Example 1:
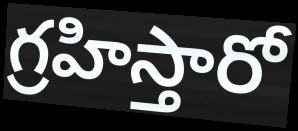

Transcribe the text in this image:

గ్రహిస్తారో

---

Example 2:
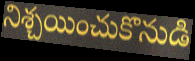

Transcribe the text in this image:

నిశ్చయించుకొనుడి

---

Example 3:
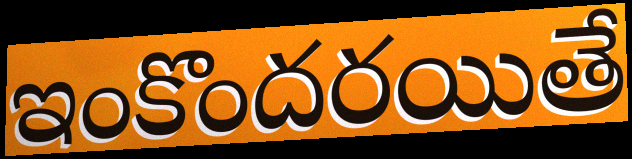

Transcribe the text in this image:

ఇంకొందరయితే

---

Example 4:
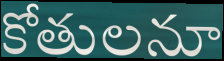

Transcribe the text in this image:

కోతులనూ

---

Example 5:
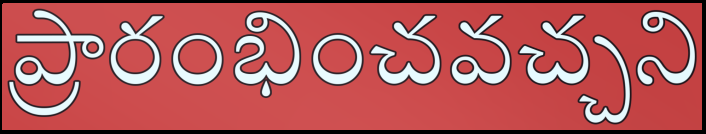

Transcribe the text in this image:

ప్రారంభించవచ్చని